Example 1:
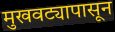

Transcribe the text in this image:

मुखवट्यापासून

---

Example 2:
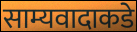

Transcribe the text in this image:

साम्यवादाकडे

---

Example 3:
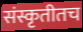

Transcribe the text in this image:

संस्कृतीतच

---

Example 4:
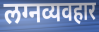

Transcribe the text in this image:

लग्नव्यवहार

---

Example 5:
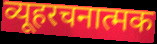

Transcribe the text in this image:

व्यूहरचनात्मक